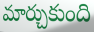
మార్చుకుంది